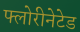
फ्लोरीनेटेड